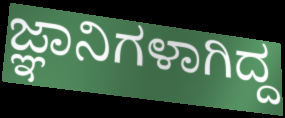
ಜ್ಞಾನಿಗಳಾಗಿದ್ದ